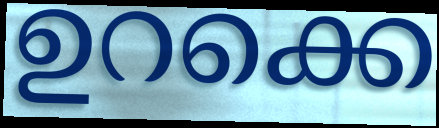
ഉറക്കെ